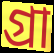
গ্রা